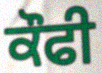
ਕੌਫੀ